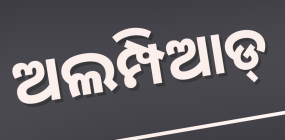
ଅଲମ୍ପିଆଡ୍